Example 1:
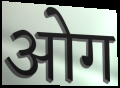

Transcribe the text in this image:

ओग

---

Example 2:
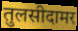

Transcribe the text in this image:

तुलसीदामर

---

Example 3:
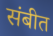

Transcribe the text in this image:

संबीत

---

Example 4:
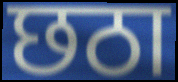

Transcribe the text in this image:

छठा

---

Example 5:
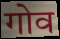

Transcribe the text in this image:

गोव